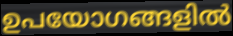
ഉപയോഗങ്ങളിൽ